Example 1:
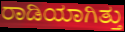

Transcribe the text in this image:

ರಾಡಿಯಾಗಿತ್ತು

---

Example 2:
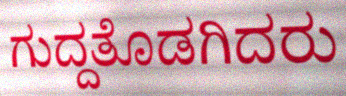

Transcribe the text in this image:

ಗುದ್ದತೊಡಗಿದರು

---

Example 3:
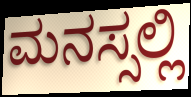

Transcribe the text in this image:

ಮನಸ್ಸಲ್ಲಿ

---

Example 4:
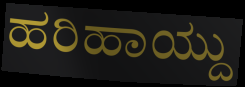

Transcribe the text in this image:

ಹರಿಹಾಯ್ದು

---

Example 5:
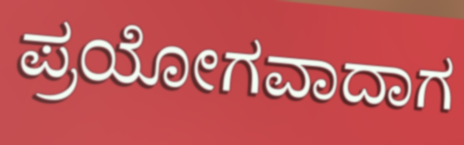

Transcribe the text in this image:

ಪ್ರಯೋಗವಾದಾಗ